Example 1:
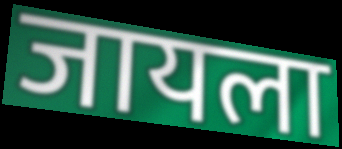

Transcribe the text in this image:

जायला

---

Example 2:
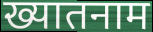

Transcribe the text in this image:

ख्यातनाम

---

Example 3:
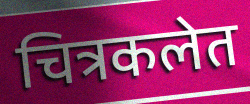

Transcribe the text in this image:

चित्रकलेत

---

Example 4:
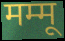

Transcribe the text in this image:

मम्मू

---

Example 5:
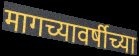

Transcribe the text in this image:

मागच्यावर्षीच्या